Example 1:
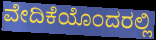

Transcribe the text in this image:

ವೇದಿಕೆಯೊಂದರಲ್ಲಿ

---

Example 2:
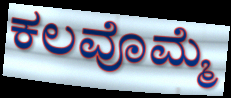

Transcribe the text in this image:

ಕಲವೊಮ್ಮೆ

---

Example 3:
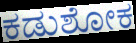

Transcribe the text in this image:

ಕಡುಶೋಕ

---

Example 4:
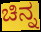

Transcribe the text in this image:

ಚಿನ್ನ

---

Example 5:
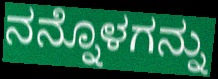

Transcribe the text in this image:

ನನ್ನೊಳಗನ್ನು